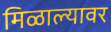
मिळाल्यावर